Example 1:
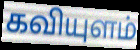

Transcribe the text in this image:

கவியுளம்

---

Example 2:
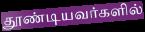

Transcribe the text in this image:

தூண்டியவர்களில்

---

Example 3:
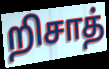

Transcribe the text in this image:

றிசாத்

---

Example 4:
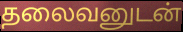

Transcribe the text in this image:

தலைவனுடன்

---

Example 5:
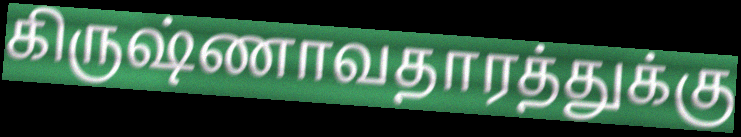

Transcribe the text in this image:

கிருஷ்ணாவதாரத்துக்கு